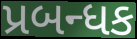
પ્રબન્ધક